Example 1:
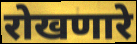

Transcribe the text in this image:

रोखणारे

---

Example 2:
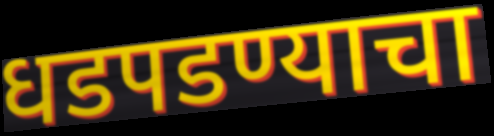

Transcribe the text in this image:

धडपडण्याचा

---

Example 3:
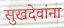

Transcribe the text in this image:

सुखदेवांना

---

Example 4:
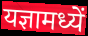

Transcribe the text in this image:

यज्ञामध्यें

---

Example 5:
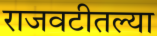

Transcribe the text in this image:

राजवटीतल्या